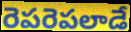
రెపరెపలాడే